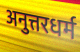
अनुत्तरधर्म